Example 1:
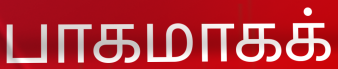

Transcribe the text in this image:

பாகமாகக்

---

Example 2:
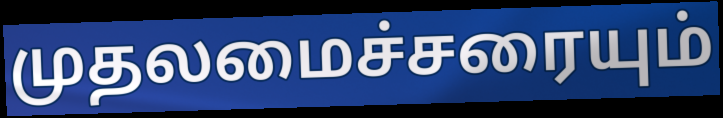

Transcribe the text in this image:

முதலமைச்சரையும்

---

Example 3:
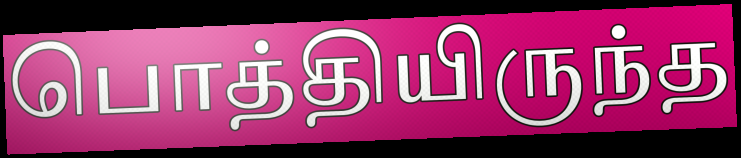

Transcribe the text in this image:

பொத்தியிருந்த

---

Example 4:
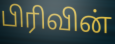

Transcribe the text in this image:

பிரிவின்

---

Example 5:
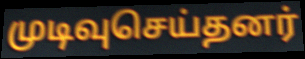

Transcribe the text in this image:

முடிவுசெய்தனர்